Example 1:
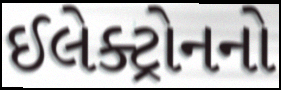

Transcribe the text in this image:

ઈલેક્ટ્રોનનો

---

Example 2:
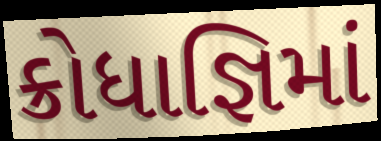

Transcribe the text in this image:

ક્રોધાજ્ઞિમાં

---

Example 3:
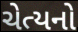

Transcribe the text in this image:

ચેત્યનો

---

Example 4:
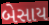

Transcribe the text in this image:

બેસાય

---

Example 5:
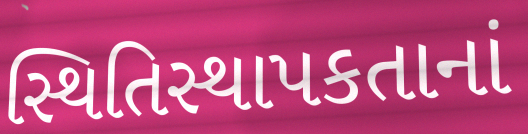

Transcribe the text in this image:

સ્થિતિસ્થાપકતાનાં